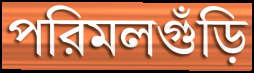
পরিমলগুঁড়ি